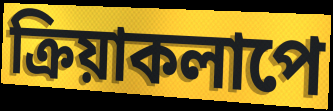
ক্রিয়াকলাপে